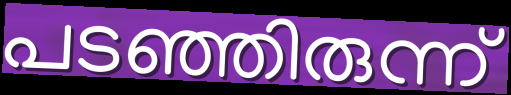
പടഞ്ഞിരുന്ന്